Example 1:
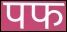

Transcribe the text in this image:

पफ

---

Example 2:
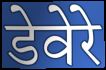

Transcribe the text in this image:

डेवेरे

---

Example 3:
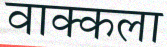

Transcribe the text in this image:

वाक्कला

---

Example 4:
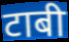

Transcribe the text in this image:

टाबी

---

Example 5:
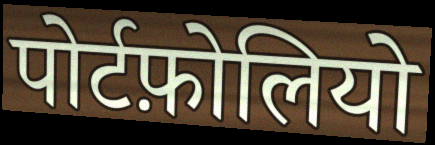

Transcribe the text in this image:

पोर्टफ़ोलियो